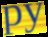
py